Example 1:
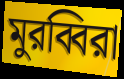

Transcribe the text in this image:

মুরব্বিরা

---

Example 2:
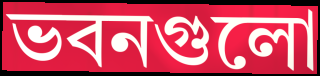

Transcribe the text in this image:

ভবনগুলো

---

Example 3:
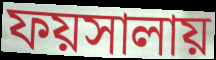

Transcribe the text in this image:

ফয়সালায়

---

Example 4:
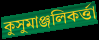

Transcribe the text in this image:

কুসুমাঞ্জলিকর্ত্তা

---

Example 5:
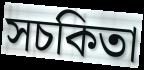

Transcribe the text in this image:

সচকিতা